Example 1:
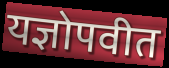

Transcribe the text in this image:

यज्ञोपवीत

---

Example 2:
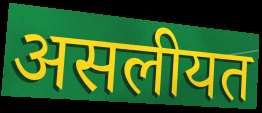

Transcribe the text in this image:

असलीयत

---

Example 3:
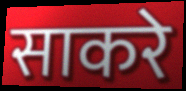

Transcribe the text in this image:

साकरे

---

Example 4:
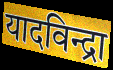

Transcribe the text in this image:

यादविन्द्रा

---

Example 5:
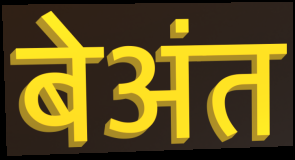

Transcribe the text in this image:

बेअंत